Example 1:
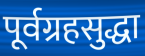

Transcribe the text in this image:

पूर्वग्रहसुद्धा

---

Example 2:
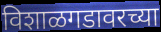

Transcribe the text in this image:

विशाळगडावरच्या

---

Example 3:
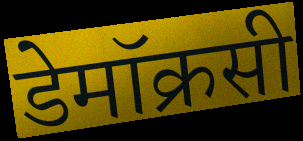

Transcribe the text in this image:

डेमॉक्रसी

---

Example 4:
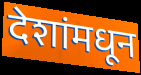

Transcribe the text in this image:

देशांमधून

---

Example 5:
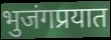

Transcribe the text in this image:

भुजंगप्रयात